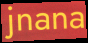
jnana